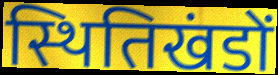
स्थितिखंडों